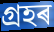
গ্ৰহৰ